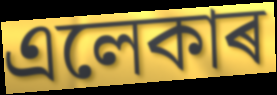
এলেকাৰ